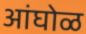
आंघोळ